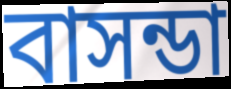
বাসন্ডা